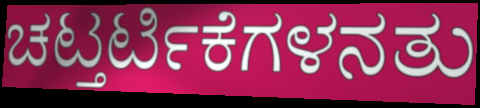
ಚಟ್ತರ್ಟಿಕೆಗಳನತು